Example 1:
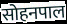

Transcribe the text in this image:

सोहनपाल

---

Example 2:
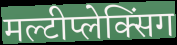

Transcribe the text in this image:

मल्टीप्लेक्सिंग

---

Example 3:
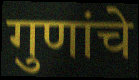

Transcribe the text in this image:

गुणांचे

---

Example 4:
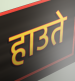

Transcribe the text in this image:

हाउते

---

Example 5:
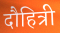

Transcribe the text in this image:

दौहित्री